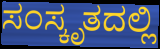
ಸಂಸ್ಕೃತದಲ್ಲಿ